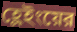
হ্লেইংয়ের